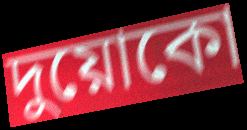
দুয়োকো